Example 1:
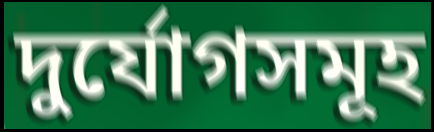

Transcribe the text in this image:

দুর্যোগসমূহ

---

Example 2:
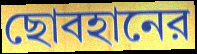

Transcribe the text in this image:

ছোবহানের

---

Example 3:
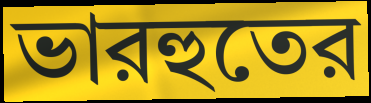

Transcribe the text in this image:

ভারহুতের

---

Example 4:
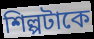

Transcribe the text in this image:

শিল্পটাকে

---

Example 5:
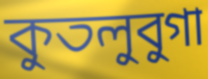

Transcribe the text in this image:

কুতলুবুগা